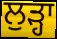
ਲੁੜ੍ਹਾ